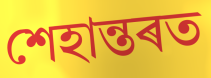
শেহান্তৰত